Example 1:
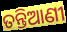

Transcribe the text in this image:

ତନ୍ତିଆଣୀ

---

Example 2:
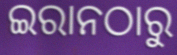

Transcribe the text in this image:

ଇରାନଠାରୁ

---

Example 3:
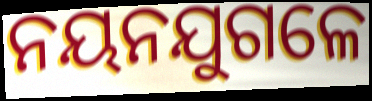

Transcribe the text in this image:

ନୟନଯୁଗଳେ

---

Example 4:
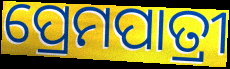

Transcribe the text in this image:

ପ୍ରେମପାତ୍ରୀ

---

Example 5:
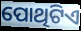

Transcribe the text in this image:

ପୋଥିଟିଏ